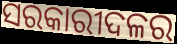
ସରକାରୀଦଳର